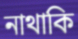
নাথাকি